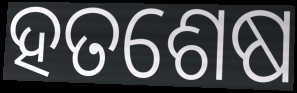
ହତଶେଷ